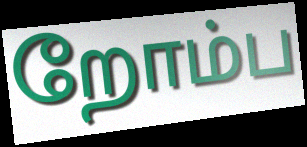
றோம்ப